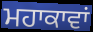
ਮਹਾਕਾਵਾਂ